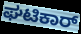
ಘಟಿಕಾರ್